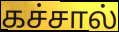
கச்சால்